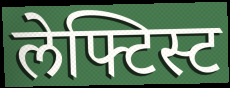
लेफ्टिस्ट